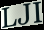
LJI